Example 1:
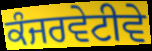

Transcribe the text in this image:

ਕੰਜਰਵੇਟੀਵੇ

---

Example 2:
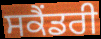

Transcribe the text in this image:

ਸਕੈਂਡਰੀ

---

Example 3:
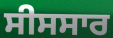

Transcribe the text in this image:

ਸੀਸਸਾਰ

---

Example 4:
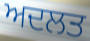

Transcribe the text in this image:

ਅਦਲਤ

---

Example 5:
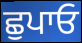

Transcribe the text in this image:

ਛੁਪਾਓ